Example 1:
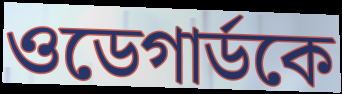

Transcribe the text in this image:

ওডেগার্ডকে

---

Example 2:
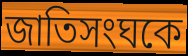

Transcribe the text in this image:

জাতিসংঘকে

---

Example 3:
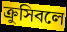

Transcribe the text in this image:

ক্রুসিবলে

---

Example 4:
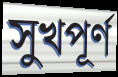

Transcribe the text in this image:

সুখপূর্ণ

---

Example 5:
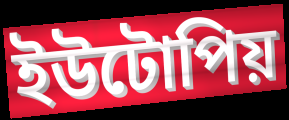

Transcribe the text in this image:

ইউটোপিয়